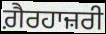
ਗ਼ੈਰਹਾਜ਼ਰੀ